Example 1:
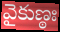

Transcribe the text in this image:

వైకుణ్ఠః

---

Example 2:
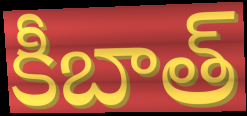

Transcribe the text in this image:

కీబాత్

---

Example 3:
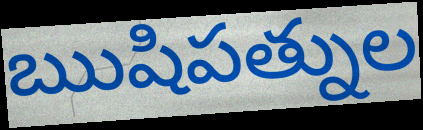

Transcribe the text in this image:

ఋషిపత్నుల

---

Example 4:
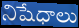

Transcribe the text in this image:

నిషేధాలు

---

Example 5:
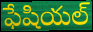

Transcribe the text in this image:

ఫేషియల్